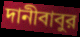
দানীবাবুর